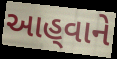
આહ્‌વાને